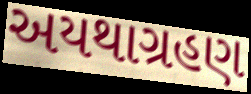
અયથાગ્રહણ